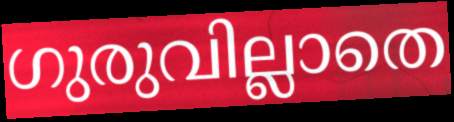
ഗുരുവില്ലാതെ